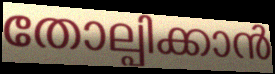
തോല്പിക്കാൻ